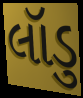
લૉડુ